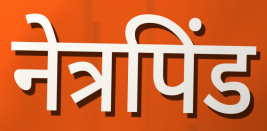
नेत्रपिंड